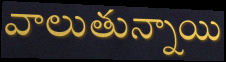
వాలుతున్నాయి